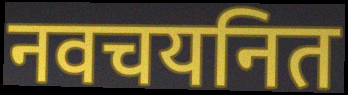
नवचयनित